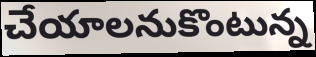
చేయాలనుకొంటున్న